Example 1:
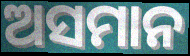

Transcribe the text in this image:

ଅସମାନ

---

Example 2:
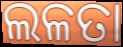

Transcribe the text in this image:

ଲଳତା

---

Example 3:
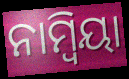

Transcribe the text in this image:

ନାମ୍ୱିୟା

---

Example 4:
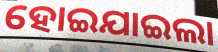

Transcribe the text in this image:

ହୋଇଯାଇଲା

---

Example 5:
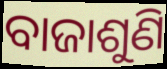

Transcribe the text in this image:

ବାଜାଶୁଣି